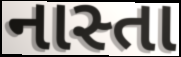
નાસ્તા